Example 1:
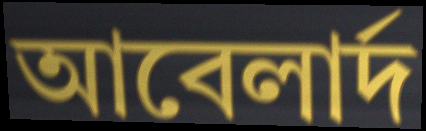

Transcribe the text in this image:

আবেলার্দ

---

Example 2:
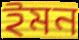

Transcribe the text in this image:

ইমন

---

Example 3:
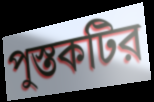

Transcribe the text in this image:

পুস্তকটির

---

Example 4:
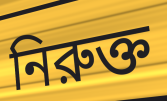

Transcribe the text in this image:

নিরুক্ত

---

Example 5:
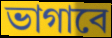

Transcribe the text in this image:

ভাগাবে